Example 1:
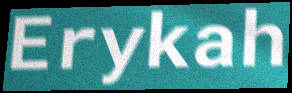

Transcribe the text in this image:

Erykah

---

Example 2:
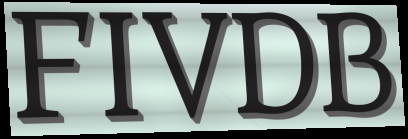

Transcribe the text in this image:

FIVDB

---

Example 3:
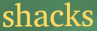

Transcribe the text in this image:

shacks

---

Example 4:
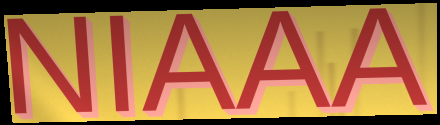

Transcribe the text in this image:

NIAAA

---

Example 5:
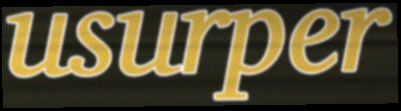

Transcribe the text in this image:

usurper